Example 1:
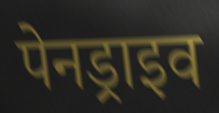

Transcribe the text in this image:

पेनड्राइव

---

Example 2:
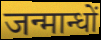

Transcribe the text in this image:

जन्मान्धों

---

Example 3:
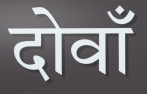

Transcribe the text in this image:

दोवाँ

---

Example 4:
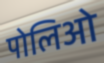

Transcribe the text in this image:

पोलिओ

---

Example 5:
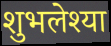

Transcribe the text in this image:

शुभलेश्या